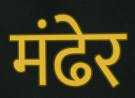
मंढेर